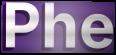
Phe